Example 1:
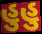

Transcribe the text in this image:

હુહુ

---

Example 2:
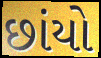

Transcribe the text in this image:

છાંયો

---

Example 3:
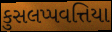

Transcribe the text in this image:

કુસલપ્પવત્તિયા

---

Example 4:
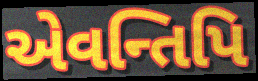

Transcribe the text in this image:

એવન્તિપિ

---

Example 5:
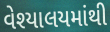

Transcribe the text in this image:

વેશ્યાલયમાંથી